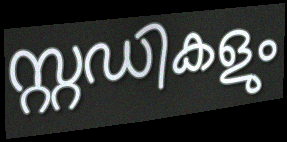
സ്റ്റഡികളും